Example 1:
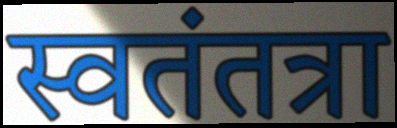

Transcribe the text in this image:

स्वतंतत्रा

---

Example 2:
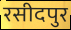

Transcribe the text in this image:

रसीदपुर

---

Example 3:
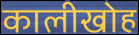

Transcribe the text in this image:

कालीखोह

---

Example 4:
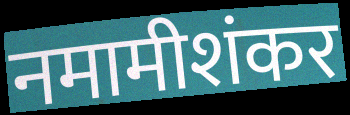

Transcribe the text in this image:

नमामीशंकर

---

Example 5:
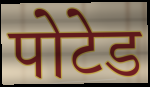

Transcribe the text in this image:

पोटेड